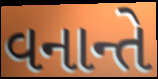
વનાન્તે